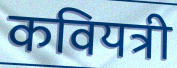
कवियत्री